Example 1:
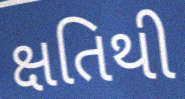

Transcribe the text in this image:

ક્ષતિથી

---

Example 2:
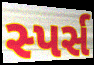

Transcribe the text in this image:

સ્પર્સ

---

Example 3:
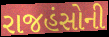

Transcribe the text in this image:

રાજહંસોની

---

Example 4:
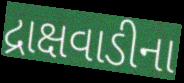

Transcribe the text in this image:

દ્રાક્ષવાડીના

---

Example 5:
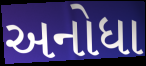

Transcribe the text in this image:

અનોધા